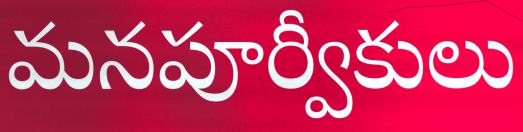
మనపూర్వీకులు